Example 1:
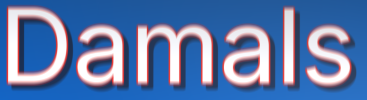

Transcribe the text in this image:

Damals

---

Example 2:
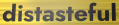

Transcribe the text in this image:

distasteful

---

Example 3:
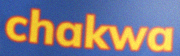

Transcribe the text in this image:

chakwa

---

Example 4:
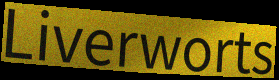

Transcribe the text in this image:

Liverworts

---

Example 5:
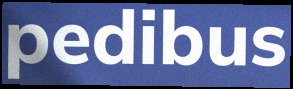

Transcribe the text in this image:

pedibus